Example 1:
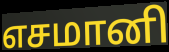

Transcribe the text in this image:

எசமானி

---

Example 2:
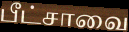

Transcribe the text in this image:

பீட்சாவை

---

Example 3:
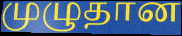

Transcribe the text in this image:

முழுதான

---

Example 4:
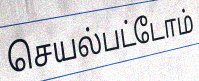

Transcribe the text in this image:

செயல்பட்டோம்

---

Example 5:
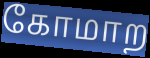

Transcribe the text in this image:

கோமாற